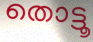
തൊട്ടൂ